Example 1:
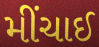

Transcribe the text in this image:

મીંચાઈ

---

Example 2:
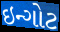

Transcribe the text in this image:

ઇન્ગોટ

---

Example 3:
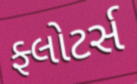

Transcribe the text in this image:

ફ્લોટર્સ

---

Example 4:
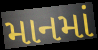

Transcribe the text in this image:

માનમાં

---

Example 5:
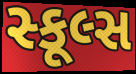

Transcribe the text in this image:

સ્કૂલ્સ